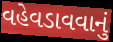
વહેવડાવવાનું